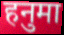
हनुमा